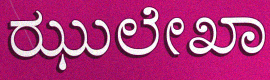
ಝುಲೇಖಾ